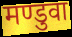
मण्डुवा